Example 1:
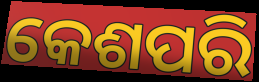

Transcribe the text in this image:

କେଶପରି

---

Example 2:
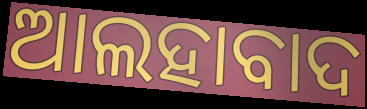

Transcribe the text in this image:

ଆଲହାବାଦ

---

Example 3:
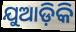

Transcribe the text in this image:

ଯୁଆଡ଼ିକି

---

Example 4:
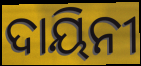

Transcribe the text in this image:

ଦାୟିନୀ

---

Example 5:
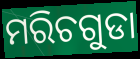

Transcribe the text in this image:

ମରିଚଗୁଡା